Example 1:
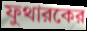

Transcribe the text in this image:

ফুথারকের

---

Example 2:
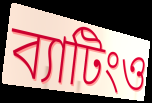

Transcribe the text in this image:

ব্যাটিংও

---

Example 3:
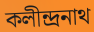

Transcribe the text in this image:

কলীন্দ্রনাথ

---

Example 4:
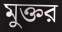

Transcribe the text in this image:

মুক্তর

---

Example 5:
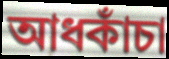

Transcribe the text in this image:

আধকাঁচা